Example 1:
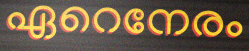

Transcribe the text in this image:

ഏറെനേരം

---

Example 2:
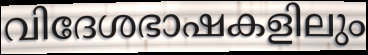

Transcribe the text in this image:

വിദേശഭാഷകളിലും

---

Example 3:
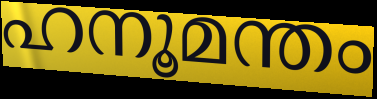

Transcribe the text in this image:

ഹനൂമന്തം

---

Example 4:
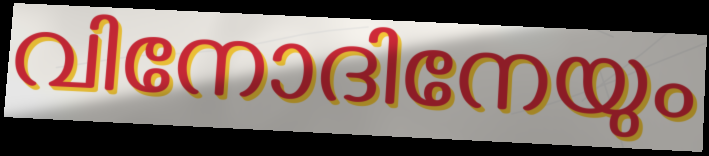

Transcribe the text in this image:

വിനോദിനേയും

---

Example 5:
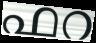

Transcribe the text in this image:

ഫറ